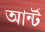
আর্ন্ট